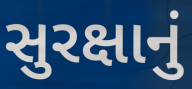
સુરક્ષાનું